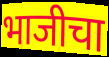
भाजीचा